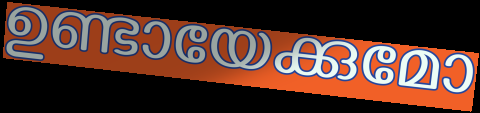
ഉണ്ടായേക്കുമോ